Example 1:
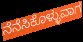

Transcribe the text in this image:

ನೆನೆಸಿಕೊಳ್ಳುವಾಗ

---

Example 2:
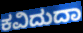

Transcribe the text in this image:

ಕವಿದುದಾ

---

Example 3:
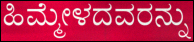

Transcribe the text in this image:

ಹಿಮ್ಮೇಳದವರನ್ನು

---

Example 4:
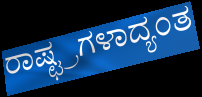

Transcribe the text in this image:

ರಾಷ್ಟ್ರಗಳಾದ್ಯಂತ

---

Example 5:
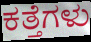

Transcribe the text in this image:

ಕತ್ತೆಗಳು